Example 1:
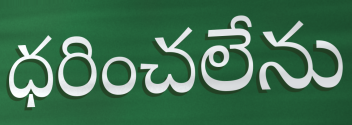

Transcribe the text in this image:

ధరించలేను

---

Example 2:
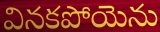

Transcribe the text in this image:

వినకపోయెను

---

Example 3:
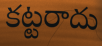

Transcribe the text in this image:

కట్టరాదు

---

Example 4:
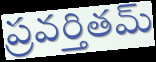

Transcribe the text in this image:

ప్రవర్తితమ్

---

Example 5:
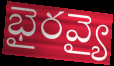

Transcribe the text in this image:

భైరవ్యై